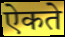
ऐकते